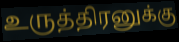
உருத்திரனுக்கு